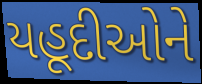
યહૂદીઓને